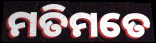
ମତିମତେ